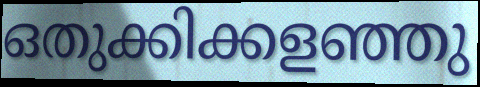
ഒതുക്കിക്കളഞ്ഞു